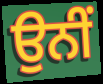
ਉਨੀਂ